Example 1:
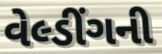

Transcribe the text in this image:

વેલ્ડીંગની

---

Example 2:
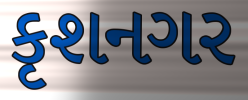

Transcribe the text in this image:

કૃશનગર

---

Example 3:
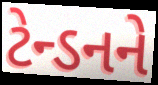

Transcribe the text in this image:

ટેન્ડનને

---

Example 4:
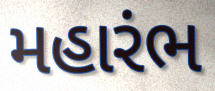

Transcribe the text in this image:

મહારંભ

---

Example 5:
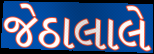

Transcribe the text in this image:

જેઠાલાલે